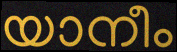
യാനീം